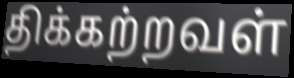
திக்கற்றவள்